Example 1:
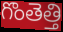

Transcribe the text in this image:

గొంతెత్తి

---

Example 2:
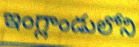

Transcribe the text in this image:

ఇంగ్లాండులోని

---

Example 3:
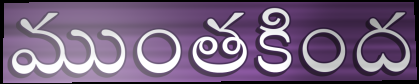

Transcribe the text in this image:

ముంతకింద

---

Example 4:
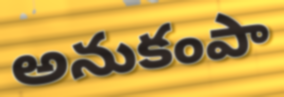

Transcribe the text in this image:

అనుకంపా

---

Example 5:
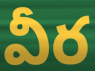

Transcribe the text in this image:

వీర